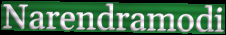
Narendramodi